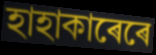
হাহাকাৰেৰে